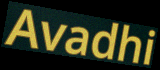
Avadhi